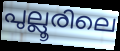
പുല്ലൂരിലെ